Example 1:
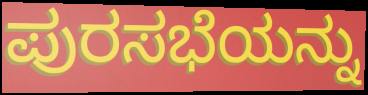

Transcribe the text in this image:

ಪುರಸಭೆಯನ್ನು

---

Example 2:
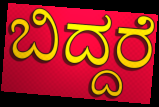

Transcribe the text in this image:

ಬಿದ್ದರೆ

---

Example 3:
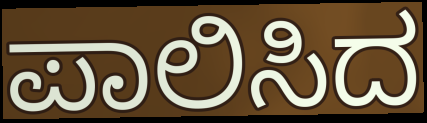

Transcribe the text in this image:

ಪಾಲಿಸಿದ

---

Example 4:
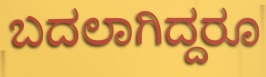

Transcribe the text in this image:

ಬದಲಾಗಿದ್ದರೂ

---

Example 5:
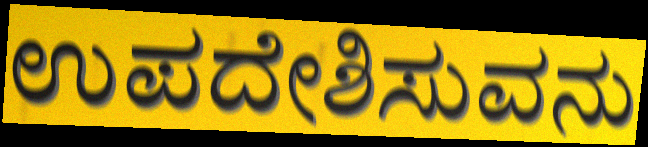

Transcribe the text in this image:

ಉಪದೇಶಿಸುವನು